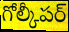
గోల్కీపర్